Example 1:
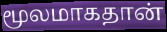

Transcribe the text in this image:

மூலமாகதான்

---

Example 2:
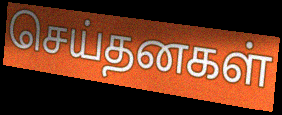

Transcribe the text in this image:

செய்தனகள்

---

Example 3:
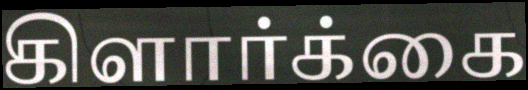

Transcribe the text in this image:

கிளார்க்கை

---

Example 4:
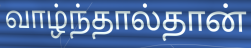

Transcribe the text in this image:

வாழ்ந்தால்தான்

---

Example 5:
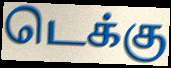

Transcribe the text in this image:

டெக்கு